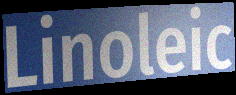
Linoleic